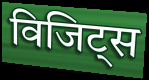
विजिट्स